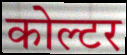
कोल्टर